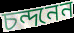
চন্দনেন